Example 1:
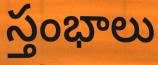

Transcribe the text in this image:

స్తంభాలు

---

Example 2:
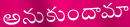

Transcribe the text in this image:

అనుకుందామా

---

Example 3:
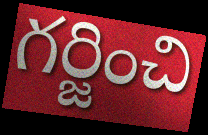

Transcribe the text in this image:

గర్జించి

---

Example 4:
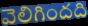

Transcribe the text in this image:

వెలిగిందది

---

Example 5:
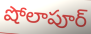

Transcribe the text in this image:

షోలాపూర్